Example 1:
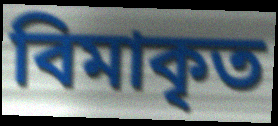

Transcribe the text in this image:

বিমাকৃত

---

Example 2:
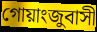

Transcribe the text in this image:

গোয়াংজুবাসী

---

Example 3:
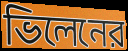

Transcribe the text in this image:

ভিলেনের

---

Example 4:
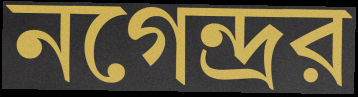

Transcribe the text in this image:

নগেন্দ্রর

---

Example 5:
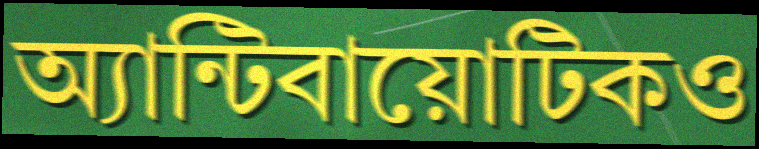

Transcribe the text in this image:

অ্যান্টিবায়োটিকও